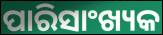
ପାରିସାଂଖ୍ୟକ